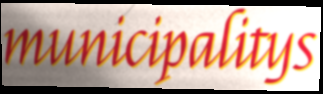
municipalitys